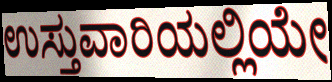
ಉಸ್ತುವಾರಿಯಲ್ಲಿಯೇ